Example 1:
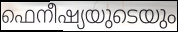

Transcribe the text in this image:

ഫെനീഷ്യയുടെയും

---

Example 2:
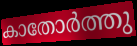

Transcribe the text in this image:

കാതോർത്തു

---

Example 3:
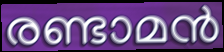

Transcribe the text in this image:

രണ്ടാമൻ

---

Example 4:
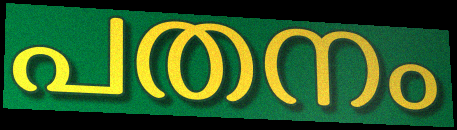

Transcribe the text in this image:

പതനം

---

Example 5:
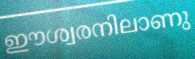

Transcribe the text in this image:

ഈശ്വരനിലാണു